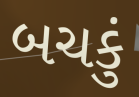
બચકું